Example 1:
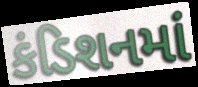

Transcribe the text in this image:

કંડિશનમાં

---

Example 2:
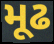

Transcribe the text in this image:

મૂઢ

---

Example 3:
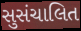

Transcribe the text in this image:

સુસંચાલિત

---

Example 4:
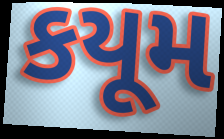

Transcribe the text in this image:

કયૂમ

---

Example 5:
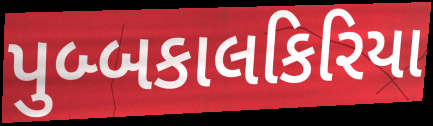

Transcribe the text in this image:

પુબ્બકાલકિરિયા